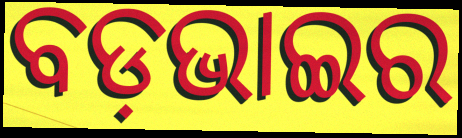
ବଡ଼ଭାଇର